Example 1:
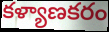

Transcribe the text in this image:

కళ్యాణకరం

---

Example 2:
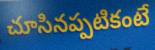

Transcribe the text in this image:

చూసినప్పటికంటే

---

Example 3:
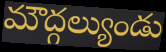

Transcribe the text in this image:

మౌద్గల్యుండు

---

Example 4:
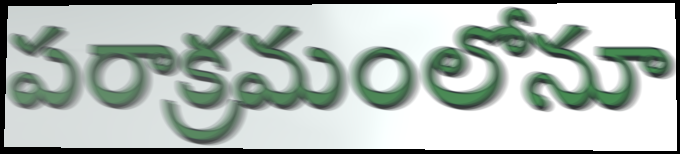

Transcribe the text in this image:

పరాక్రమంలోనూ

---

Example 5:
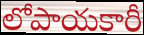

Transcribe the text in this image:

లోపాయకారీ